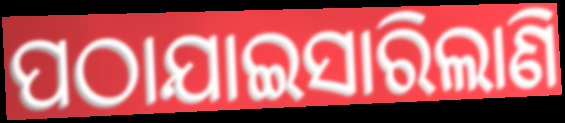
ପଠାଯାଇସାରିଲାଣି